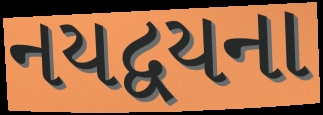
નયદ્વયના